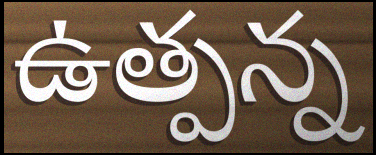
ఉత్పన్న